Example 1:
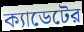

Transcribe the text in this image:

ক্যাডেটের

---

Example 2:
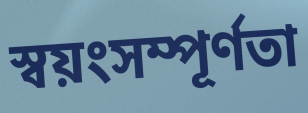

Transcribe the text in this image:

স্বয়ংসম্পূর্ণতা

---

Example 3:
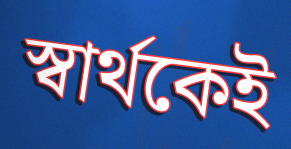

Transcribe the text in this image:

স্বার্থকেই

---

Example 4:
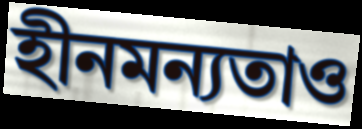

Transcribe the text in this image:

হীনমন্যতাও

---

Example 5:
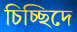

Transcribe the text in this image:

চিচ্ছিদে